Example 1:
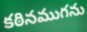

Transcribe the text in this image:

కఠినముగను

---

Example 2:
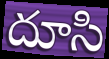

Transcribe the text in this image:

దూసి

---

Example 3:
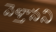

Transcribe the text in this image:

వెళ్తానని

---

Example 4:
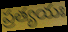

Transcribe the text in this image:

ప్రత్యయః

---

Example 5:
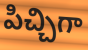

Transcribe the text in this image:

పిచ్చిగా